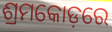
ଶ୍ରମକୋଡ଼ରେ